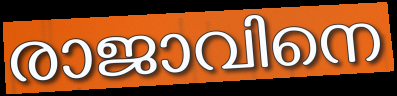
രാജാവിനെ